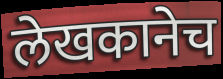
लेखकानेच